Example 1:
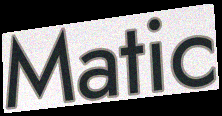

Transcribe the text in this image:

Matic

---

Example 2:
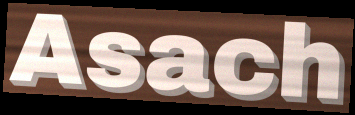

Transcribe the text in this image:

Asach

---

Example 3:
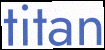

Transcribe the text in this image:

titan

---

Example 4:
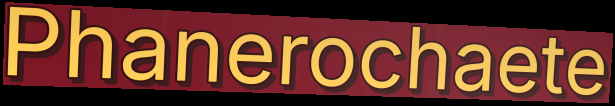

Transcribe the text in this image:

Phanerochaete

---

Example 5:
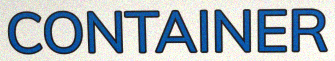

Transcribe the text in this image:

CONTAINER